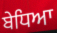
ਬੇਧਿਆ